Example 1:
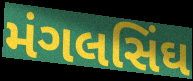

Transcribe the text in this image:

મંગલસિંઘ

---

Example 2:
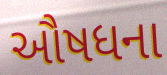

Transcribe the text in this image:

ઔષધના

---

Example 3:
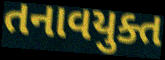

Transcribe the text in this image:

તનાવયુક્ત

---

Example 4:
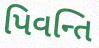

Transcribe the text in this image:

પિવન્તિ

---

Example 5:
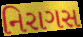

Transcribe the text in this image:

નિરાગસ